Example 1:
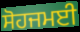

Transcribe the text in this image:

ਸੋਹਜਮਈ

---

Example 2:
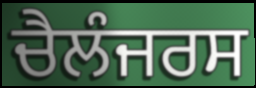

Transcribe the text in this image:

ਚੈਲੰਜਰਸ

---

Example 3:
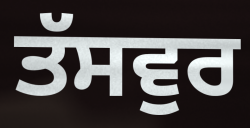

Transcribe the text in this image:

ਤੱਸਵੁਰ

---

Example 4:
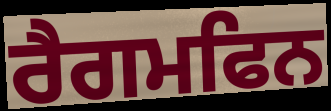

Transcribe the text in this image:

ਰੈਗਮਫਿਨ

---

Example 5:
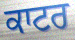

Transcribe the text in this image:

ਕਾਟਰ